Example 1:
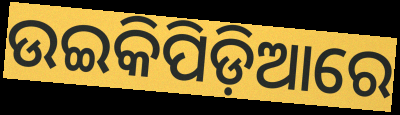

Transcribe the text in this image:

ଉଇକିପିଡ଼ିଆରେ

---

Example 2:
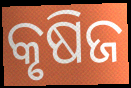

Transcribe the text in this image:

କୃଷିଜ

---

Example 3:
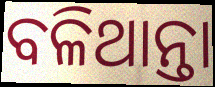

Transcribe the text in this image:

ବଳିଥାନ୍ତା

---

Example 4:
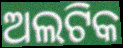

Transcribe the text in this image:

ଅଲଟିକ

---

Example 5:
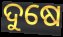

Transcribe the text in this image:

ଦୁଷେ